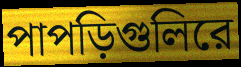
পাপড়িগুলিরে